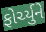
ફોર્ચ્યુને